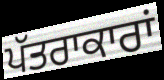
ਪੱਤਰਾਕਾਰਾਂ